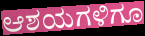
ಆಶಯಗಳಿಗೂ